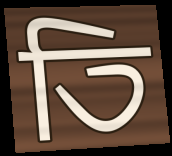
তি